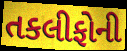
તકલીફોની